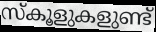
സ്കൂളുകളുണ്ട്